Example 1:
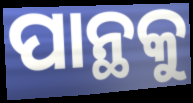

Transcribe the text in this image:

ପାନ୍ଥକୁ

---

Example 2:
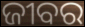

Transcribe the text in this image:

ଜୀବର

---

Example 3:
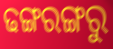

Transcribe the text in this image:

ଢଙ୍ଗରଙ୍ଗରୁ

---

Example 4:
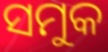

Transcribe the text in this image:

ସମୁକ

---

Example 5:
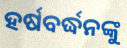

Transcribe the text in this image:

ହର୍ଷବର୍ଦ୍ଧନଙ୍କୁ